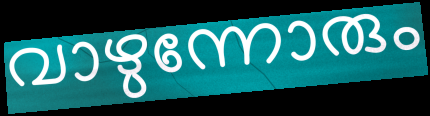
വാഴുന്നോരും